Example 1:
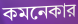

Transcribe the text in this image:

কমনেকার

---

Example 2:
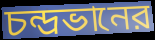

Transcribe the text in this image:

চন্দ্রভানের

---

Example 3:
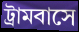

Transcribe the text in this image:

ট্রামবাসে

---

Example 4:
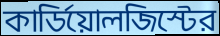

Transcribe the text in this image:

কার্ডিয়োলজিস্টের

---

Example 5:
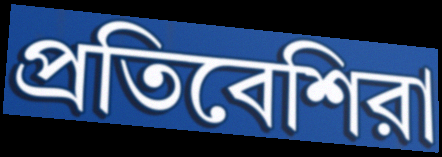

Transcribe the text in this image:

প্রতিবেশিরা